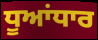
ਧੂਆਂਧਾਰ